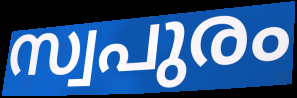
സ്വപുരം